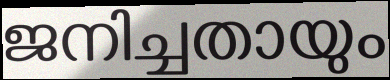
ജനിച്ചതായും